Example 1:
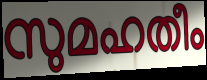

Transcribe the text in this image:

സുമഹതീം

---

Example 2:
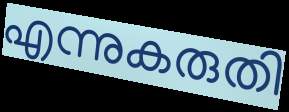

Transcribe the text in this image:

എന്നുകരുതി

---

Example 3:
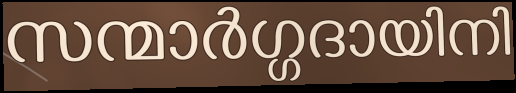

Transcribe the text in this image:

സന്മാർഗ്ഗദായിനി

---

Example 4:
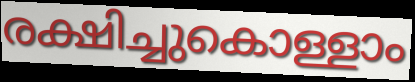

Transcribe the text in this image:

രക്ഷിച്ചുകൊള്ളാം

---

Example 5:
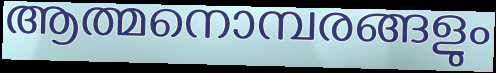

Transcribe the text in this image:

ആത്മനൊമ്പരങ്ങളും